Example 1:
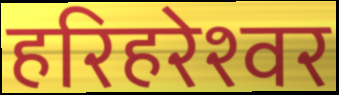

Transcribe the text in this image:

हरिहरेश्वर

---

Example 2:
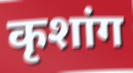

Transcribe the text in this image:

कृशांग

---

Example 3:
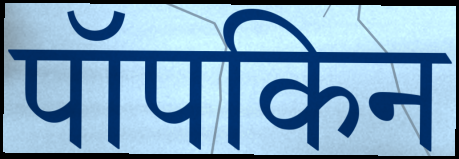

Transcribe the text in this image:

पॉपकिन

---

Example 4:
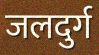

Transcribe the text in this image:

जलदुर्ग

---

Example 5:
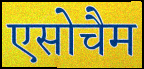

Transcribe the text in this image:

एसोचैम